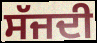
ਸੱਜਦੀ